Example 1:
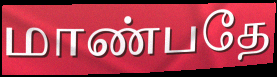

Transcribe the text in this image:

மாண்பதே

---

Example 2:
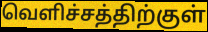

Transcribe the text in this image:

வெளிச்சத்திற்குள்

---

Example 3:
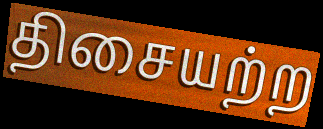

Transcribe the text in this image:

திசையற்ற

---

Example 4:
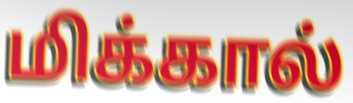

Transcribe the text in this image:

மிக்கால்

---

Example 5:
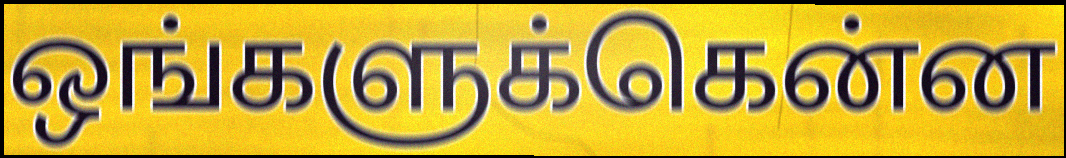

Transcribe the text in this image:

ஒங்களுக்கென்ன